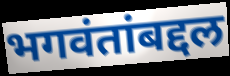
भगवंतांबद्दल